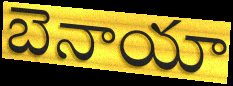
బెనాయా